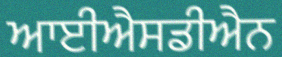
ਆਈਐਸਡੀਐਨ